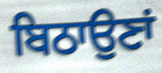
ਬਿਠਾਉਣਾਂ